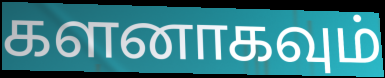
களனாகவும்